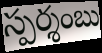
స్పర్శంబు